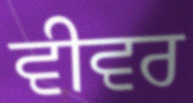
ਵੀਵਰ